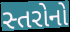
સ્તરોનો